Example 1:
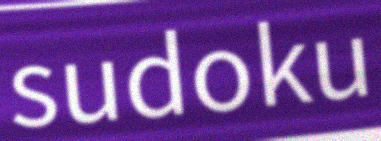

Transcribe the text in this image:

sudoku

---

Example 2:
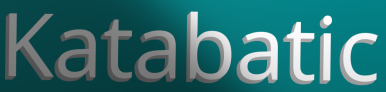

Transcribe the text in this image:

Katabatic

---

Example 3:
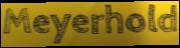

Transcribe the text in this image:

Meyerhold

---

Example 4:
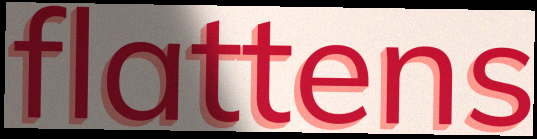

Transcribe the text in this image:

flattens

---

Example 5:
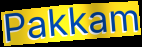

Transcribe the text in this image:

Pakkam